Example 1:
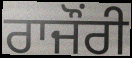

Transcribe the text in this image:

ਰਾਜੌਂਰੀ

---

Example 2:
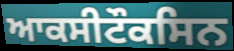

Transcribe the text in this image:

ਆਕਸੀਟੌਕਸਿਨ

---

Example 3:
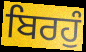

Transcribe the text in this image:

ਬਿਰਹੁੰ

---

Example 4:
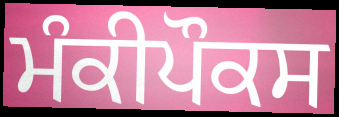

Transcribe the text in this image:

ਮੰਕੀਪੌਕਸ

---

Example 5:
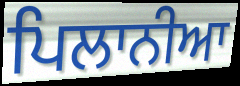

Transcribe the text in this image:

ਪਿਲਾਨੀਆ